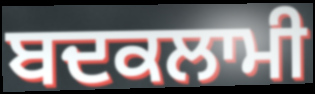
ਬਦਕਲਾਮੀ